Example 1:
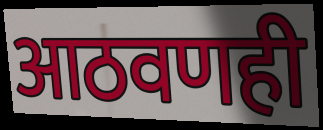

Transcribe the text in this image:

आठवणही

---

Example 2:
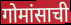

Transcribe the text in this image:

गोमांसाची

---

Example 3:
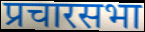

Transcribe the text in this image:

प्रचारसभा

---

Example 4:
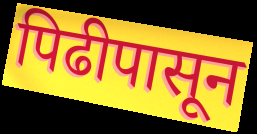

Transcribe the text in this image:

पिढीपासून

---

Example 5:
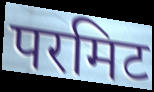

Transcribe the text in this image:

परमिट